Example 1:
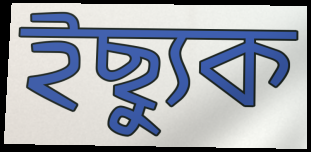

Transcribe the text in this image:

ইছ্যুক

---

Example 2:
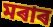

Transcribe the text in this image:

মৰাৰ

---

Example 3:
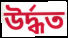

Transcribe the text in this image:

উৰ্দ্ধত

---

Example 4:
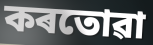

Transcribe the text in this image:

কৰতোৱা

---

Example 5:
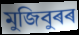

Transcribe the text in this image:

মুজিবুৰৰ